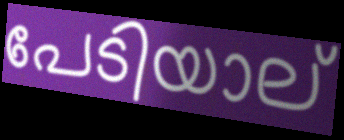
പേടിയാല്